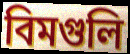
বিমগুলি